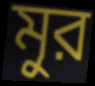
মুর